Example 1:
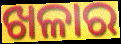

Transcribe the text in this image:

ଖଳାର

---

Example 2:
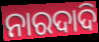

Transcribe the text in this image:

ନାରଦାଦି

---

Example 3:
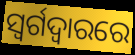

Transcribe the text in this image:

ସ୍ୱର୍ଗଦ୍ୱାରରେ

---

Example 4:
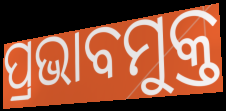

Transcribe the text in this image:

ପ୍ରଭାବମୁକ୍ତ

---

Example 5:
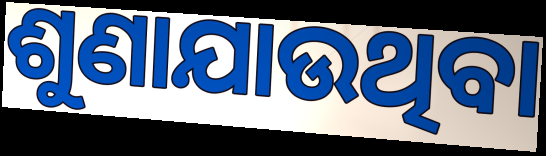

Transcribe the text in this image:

ଶୁଣାଯାଉଥିବା